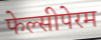
फेल्सीपेरम